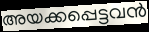
അയക്കപ്പെട്ടവൻ